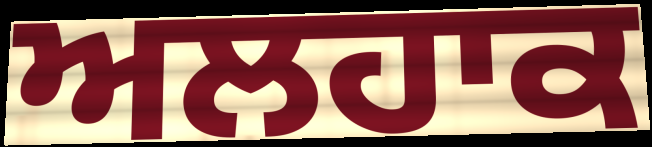
ਅਲਹਾਕ